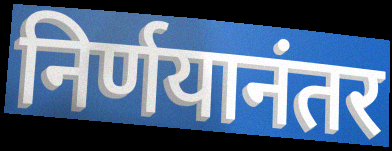
निर्णयानंतर